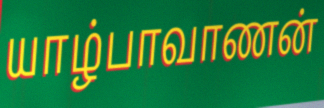
யாழ்பாவாணன்